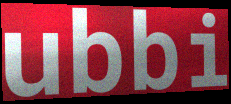
ubbi